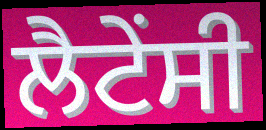
ਲੈਟੇਂਸੀ